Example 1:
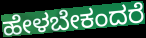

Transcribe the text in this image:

ಹೇಳಬೇಕಂದರೆ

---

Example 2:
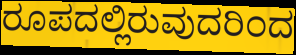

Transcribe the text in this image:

ರೂಪದಲ್ಲಿರುವುದರಿಂದ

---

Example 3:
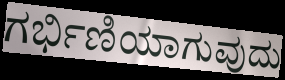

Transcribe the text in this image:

ಗರ್ಭಿಣಿಯಾಗುವುದು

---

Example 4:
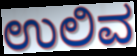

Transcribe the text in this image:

ಉಲಿವ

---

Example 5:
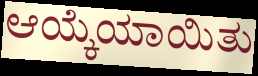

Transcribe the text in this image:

ಆಯ್ಕೆಯಾಯಿತು